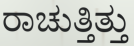
ರಾಚುತ್ತಿತ್ತು